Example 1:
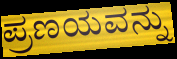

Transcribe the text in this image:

ಪ್ರಣಯವನ್ನು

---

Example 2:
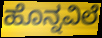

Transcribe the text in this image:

ಹೊನ್ನವಿಲೆ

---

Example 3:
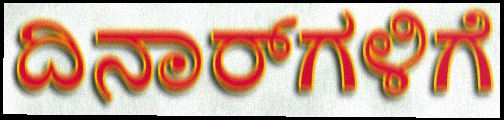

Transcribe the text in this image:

ದಿನಾರ್‌ಗಳಿಗೆ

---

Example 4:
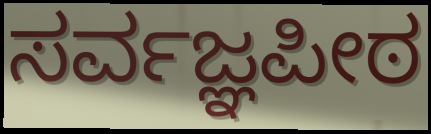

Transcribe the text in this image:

ಸರ್ವಜ್ಞಪೀಠ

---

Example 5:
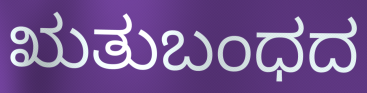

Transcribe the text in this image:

ಋತುಬಂಧದ